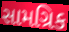
સામગ્રિક